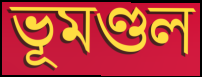
ভূমণ্ডল